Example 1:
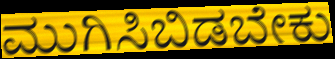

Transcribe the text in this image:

ಮುಗಿಸಿಬಿಡಬೇಕು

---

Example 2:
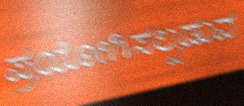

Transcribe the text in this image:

ಪ್ರಯೋಗಿಸಲ್ಪಡುವ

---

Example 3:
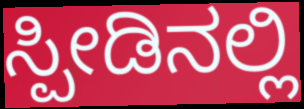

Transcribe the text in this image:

ಸ್ಪೀಡಿನಲ್ಲಿ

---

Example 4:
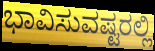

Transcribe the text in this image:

ಭಾವಿಸುವಷ್ಟರಲ್ಲಿ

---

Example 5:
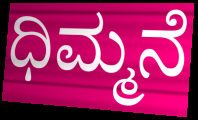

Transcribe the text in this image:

ಧಿಮ್ಮನೆ